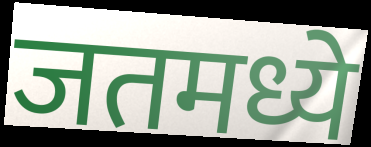
जतमध्ये